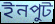
ইনপুট